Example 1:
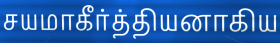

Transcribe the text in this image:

சயமாகீர்த்தியனாகிய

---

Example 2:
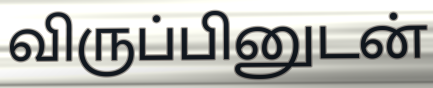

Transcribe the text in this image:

விருப்பினுடன்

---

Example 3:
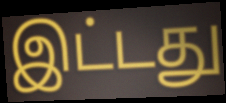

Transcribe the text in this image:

இட்டது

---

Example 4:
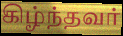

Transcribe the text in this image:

கிழ்ந்தவர்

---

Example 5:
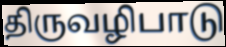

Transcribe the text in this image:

திருவழிபாடு